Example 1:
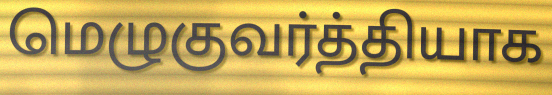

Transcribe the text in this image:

மெழுகுவர்த்தியாக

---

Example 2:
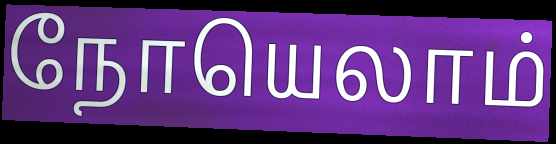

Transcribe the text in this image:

நோயெலாம்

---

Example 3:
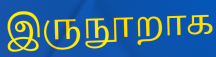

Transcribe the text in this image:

இருநூறாக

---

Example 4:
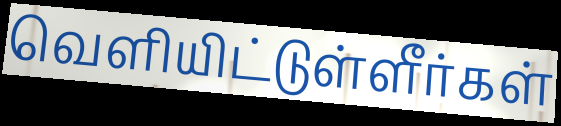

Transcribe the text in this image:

வெளியிட்டுள்ளீர்கள்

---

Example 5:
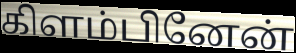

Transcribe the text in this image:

கிளம்பினேன்